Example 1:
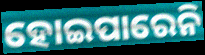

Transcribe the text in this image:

ହୋଇପାରେନି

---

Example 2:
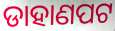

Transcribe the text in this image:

ଡାହାଣପଟ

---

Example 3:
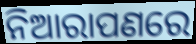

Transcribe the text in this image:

ନିଆରାପଣରେ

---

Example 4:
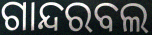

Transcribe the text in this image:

ଗାନ୍ଦରବଲ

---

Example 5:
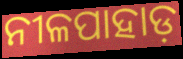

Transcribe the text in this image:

ନୀଳପାହାଡ଼